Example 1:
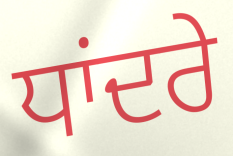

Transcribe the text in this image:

ਧਾਂਦਰੇ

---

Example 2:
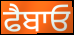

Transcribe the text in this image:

ਫੈਬਾਓ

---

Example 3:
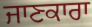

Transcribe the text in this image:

ਜਾਣਕਾਰਾ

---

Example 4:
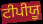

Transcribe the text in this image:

ਟੀਪੀਯੂ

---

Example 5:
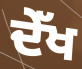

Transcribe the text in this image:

ਦੇੱਖ